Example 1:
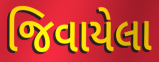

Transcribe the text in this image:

જિવાયેલા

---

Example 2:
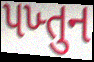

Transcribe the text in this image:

પખ્તુન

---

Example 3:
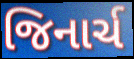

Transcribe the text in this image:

જિનાર્ચ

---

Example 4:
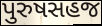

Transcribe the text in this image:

પુરુષસહજ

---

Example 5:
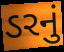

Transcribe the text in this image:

ડરનું